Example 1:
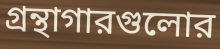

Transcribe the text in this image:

গ্রন্থাগারগুলোর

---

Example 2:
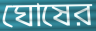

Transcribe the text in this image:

ঘোষের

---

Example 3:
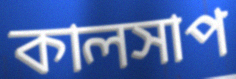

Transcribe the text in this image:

কালসাপ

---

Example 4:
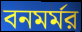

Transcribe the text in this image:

বনমর্মর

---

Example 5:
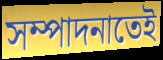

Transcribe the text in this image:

সম্পাদনাতেই